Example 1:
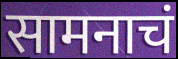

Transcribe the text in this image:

सामनाचं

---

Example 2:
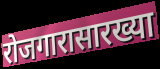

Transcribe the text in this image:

रोजगारासारख्या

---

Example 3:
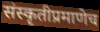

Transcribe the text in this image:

संस्कृतीप्रमाणेच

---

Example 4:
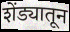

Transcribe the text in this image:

शेंड्यातून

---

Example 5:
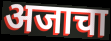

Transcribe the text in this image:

अजाचा